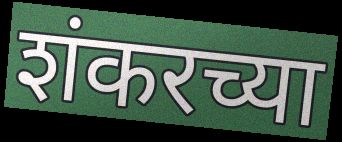
शंकरच्या